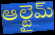
ఆల్టైమ్